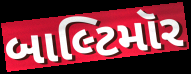
બાલ્ટિમૉર